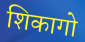
शिकागो